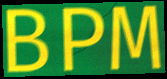
BPM